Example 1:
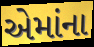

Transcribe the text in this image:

એમાંના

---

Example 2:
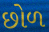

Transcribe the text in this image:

છોળ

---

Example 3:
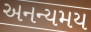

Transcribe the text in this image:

અનન્યમય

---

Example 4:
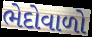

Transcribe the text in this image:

ભેદોવાળો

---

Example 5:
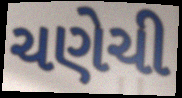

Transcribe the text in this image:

ચણેચી